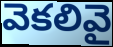
వెకలివై